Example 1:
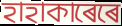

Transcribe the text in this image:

হাহাকাৰেৰে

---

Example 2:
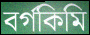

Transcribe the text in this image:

বৰ্গকিমি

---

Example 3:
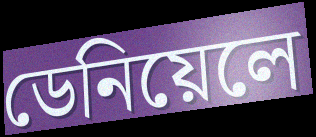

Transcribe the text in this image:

ডেনিয়েলে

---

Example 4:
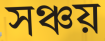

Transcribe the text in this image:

সঞ্চয়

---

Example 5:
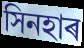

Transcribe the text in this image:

সিনহাৰ